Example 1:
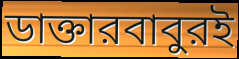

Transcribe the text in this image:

ডাক্তারবাবুরই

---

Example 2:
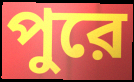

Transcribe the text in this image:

পুরে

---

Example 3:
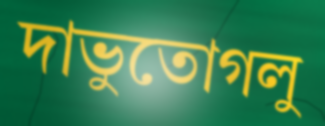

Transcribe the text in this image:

দাভুতোগলু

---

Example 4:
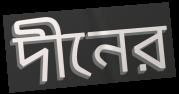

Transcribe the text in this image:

দীনের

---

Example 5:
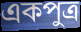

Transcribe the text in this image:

একপুত্র